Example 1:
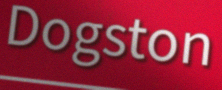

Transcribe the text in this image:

Dogston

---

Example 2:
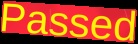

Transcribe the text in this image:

Passed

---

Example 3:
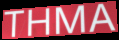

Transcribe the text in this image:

THMA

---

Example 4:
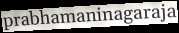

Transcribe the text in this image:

prabhamaninagaraja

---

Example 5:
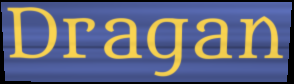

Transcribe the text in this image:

Dragan